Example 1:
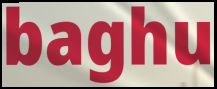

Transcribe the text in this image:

baghu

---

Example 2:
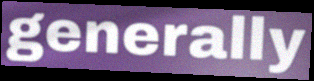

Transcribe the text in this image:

generally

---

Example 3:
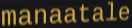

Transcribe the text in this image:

manaatale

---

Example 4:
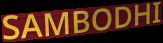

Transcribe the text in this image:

SAMBODHI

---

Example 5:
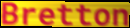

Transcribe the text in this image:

Bretton